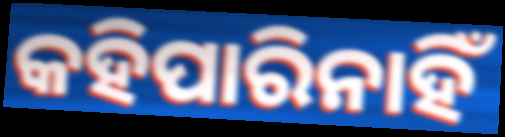
କହିପାରିନାହିଁ